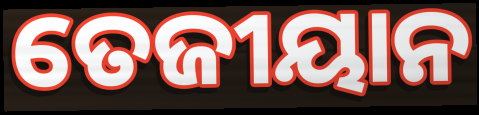
ତେଜୀୟାନ